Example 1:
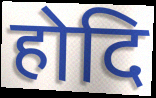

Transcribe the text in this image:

होदि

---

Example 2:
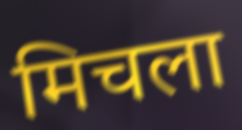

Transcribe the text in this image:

मिचला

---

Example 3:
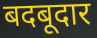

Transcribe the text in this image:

बदबूदार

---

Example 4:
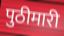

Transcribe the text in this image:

पुठीमारी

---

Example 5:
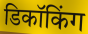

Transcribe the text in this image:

डिकॉकिंग